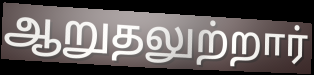
ஆறுதலுற்றார்